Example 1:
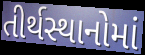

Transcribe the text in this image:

તીર્થસ્થાનોમાં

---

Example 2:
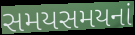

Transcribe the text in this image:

સમયસમયનાં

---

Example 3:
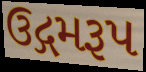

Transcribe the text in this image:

ઉદ્ગમરૂપ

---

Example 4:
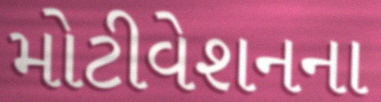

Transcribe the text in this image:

મોટીવેશનના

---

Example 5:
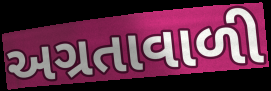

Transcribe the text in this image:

અગ્રતાવાળી